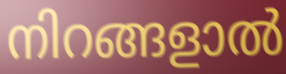
നിറങ്ങളാൽ